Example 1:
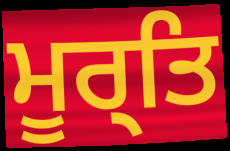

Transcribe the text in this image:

ਮੂਰ੍ਤਿ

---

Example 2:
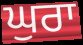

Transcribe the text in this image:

ਘੁਰਾ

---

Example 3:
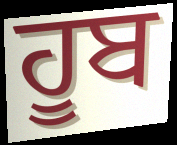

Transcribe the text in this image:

ਹੂਬ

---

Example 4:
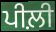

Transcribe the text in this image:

ਪੀਲ਼ੀ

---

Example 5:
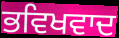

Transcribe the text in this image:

ਭਵਿਖਵਾਦ